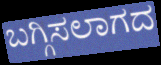
ಬಗ್ಗಿಸಲಾಗದ